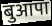
बुआपा